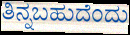
ತಿನ್ನಬಹುದೆಂದು